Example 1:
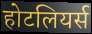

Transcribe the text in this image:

होटलियर्स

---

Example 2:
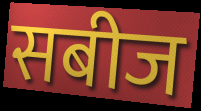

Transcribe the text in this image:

सबीज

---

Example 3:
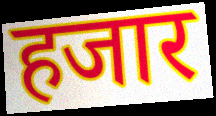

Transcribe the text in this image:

हजार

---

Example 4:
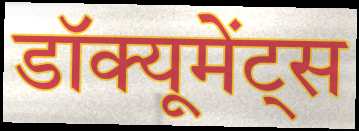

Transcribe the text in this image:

डॉक्यूमेंट्स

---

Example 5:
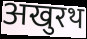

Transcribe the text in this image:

अखुरथ